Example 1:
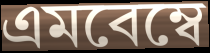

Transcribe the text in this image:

এমবেম্বে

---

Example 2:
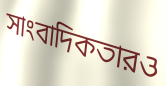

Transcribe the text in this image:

সাংবাদিকতারও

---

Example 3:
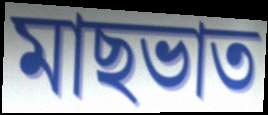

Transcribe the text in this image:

মাছভাত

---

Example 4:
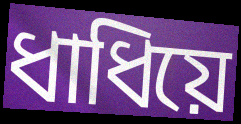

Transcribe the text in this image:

ধাধিয়ে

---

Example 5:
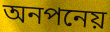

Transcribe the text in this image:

অনপনেয়